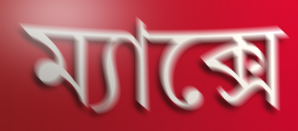
ম্যাক্সে